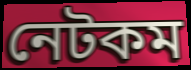
নেটকম